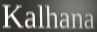
Kalhana